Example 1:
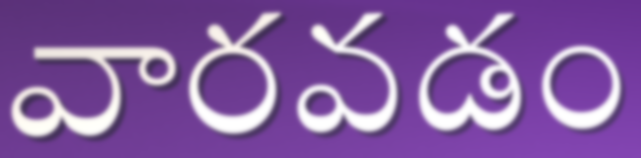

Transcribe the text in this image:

వారవడం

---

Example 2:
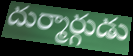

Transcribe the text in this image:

దుర్మార్గుడు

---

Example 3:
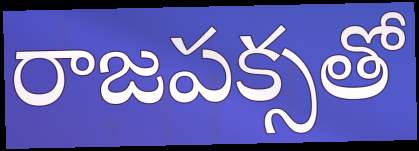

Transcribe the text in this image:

రాజపక్సతో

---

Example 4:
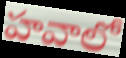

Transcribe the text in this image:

హవాలో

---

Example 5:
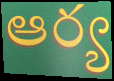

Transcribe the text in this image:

ఆర్య